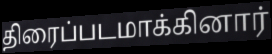
திரைப்படமாக்கினார்